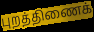
புறத்திணைக்